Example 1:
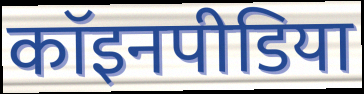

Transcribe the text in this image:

कॉइनपीडिया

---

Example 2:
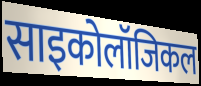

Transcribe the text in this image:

साइकोलॉजिकल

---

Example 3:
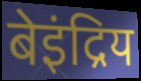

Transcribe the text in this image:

बेइंद्रिय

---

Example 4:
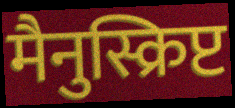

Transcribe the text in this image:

मैनुस्क्रिप्ट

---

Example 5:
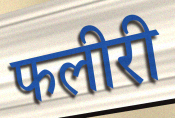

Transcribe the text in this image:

फलीरी